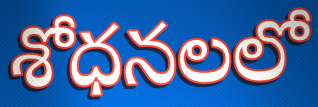
శోధనలలో